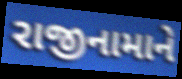
રાજીનામાને